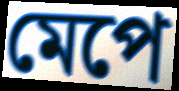
মেপে